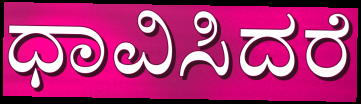
ಧಾವಿಸಿದರೆ